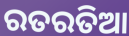
ରତରତିଆ